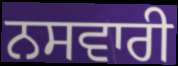
ਨਸਵਾਰੀ